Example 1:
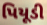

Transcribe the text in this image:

પિયૂડી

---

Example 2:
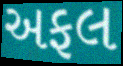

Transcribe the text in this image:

અફલ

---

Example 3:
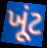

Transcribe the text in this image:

ખૂંટ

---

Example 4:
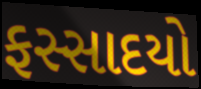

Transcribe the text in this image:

ફસ્સાદયો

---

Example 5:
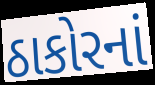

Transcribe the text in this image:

ઠાકોરનાં